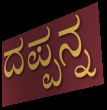
ದಪ್ಪನ್ನ